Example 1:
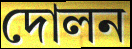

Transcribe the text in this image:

দোলন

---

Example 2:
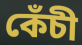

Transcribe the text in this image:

কেঁচী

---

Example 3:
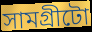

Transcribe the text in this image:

সামগ্ৰীটো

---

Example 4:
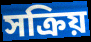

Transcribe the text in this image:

সক্ৰিয়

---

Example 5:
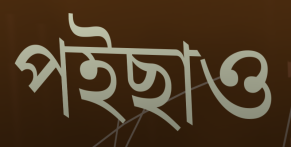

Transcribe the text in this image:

পইছাও